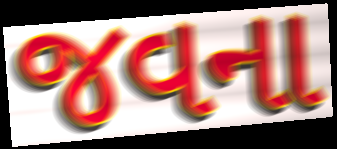
જવના